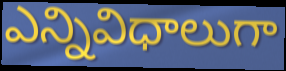
ఎన్నివిధాలుగా